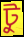
টু